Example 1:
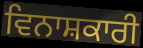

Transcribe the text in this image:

ਵਿਨਾਸ਼ਕਾਰੀ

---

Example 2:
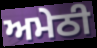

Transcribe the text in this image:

ਅਮੇਠੀ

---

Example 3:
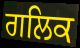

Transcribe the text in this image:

ਗਲਿਕ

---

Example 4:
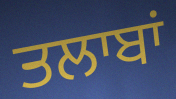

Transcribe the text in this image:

ਤਲਾਬਾਂ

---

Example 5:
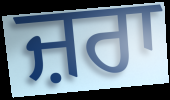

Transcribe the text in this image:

ਜ਼ਰਾ